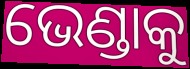
ଭେଣ୍ଡାକୁ